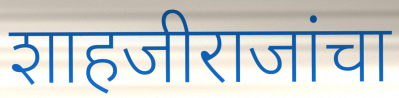
शाहजीराजांचा